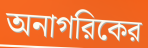
অনাগরিকের